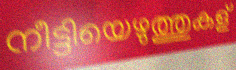
നീട്ടിയെഴുത്തുകള്